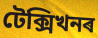
টেক্সিখনৰ